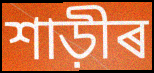
শাড়ীৰ